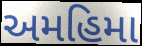
અમહિમા